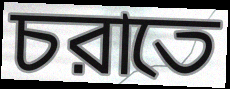
চরাতে